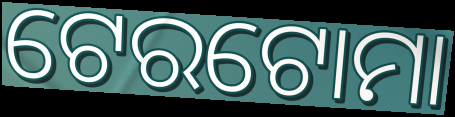
ଟେରଟୋମା